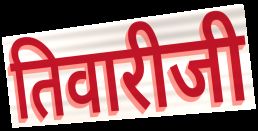
तिवारीजी